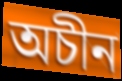
অচীন